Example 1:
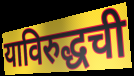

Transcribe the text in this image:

याविरुद्धची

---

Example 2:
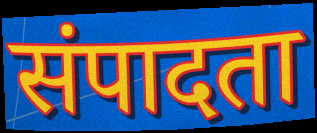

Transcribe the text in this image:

संपादता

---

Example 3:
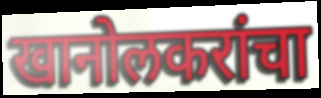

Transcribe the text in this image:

खानोलकरांचा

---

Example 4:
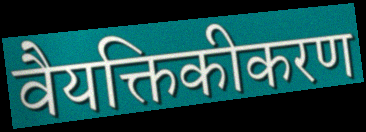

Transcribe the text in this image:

वैयक्तिकीकरण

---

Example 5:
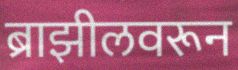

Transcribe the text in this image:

ब्राझीलवरून